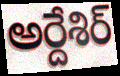
అర్దేశిర్